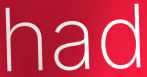
had